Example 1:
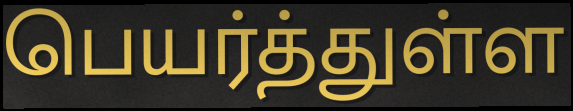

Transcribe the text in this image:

பெயர்த்துள்ள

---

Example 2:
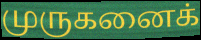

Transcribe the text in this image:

முருகனைக்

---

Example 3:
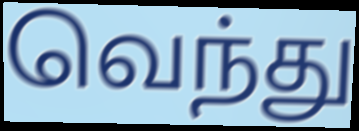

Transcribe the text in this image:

வெந்து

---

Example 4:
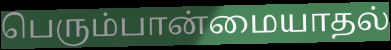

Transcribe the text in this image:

பெரும்பான்மையாதல்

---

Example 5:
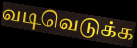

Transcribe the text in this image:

வடிவெடுக்க